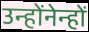
उन्होंनेन्हों